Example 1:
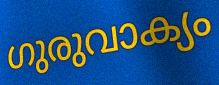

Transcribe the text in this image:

ഗുരുവാക്യം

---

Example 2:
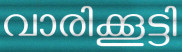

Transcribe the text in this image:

വാരിക്കൂട്ടി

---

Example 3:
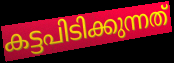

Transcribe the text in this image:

കട്ടപിടിക്കുന്നത്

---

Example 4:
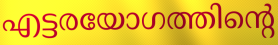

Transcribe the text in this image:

എട്ടരയോഗത്തിന്റെ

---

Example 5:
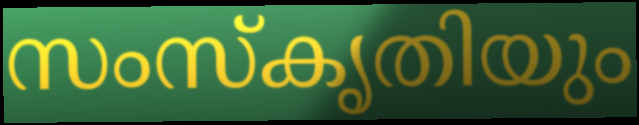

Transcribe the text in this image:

സംസ്കൃതിയും